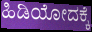
ಹಿಡಿಯೋದಕ್ಕೆ